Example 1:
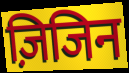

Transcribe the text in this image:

ज़िजिन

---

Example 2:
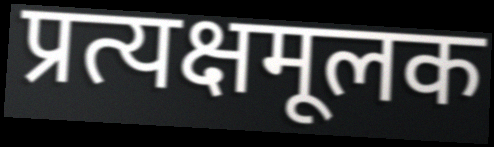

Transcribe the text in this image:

प्रत्यक्षमूलक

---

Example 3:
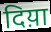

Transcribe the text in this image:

दिय़ा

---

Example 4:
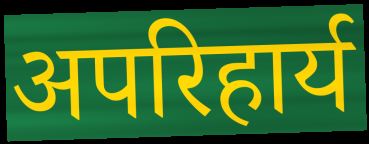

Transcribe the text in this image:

अपरिहार्य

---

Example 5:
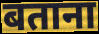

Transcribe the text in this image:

बताना